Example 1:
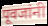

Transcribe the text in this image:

पूवजांनी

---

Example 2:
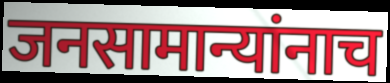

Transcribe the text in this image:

जनसामान्यांनाच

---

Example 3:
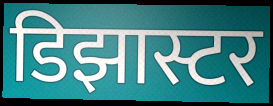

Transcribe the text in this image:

डिझास्टर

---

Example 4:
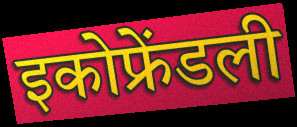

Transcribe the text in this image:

इकोफ्रेंडली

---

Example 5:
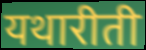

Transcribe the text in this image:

यथारीती